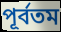
পূর্বতম